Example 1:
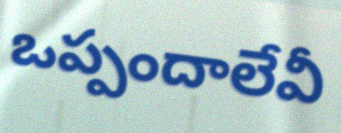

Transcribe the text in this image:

ఒప్పందాలేవీ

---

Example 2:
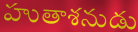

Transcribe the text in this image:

హుతాశనుడు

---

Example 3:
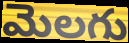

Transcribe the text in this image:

మెలగు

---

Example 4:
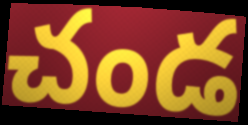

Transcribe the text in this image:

చండ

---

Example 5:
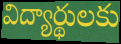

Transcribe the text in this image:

విద్యార్థులకు